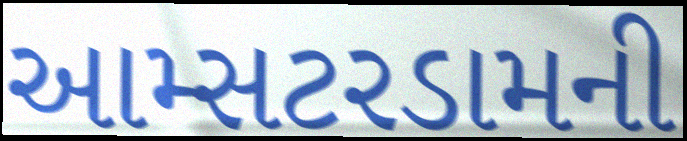
આમ્સટરડામની